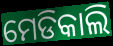
ମେଡିକାଲି